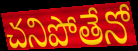
చనిపోతేనో